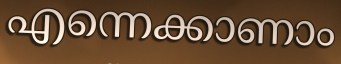
എന്നെക്കാണാം